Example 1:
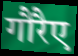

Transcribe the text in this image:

गौरैए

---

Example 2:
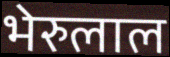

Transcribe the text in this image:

भेरुलाल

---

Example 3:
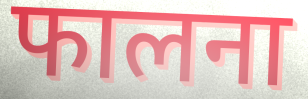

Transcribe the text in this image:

फालना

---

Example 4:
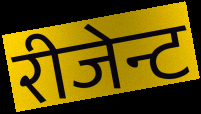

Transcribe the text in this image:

रीजेन्ट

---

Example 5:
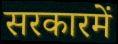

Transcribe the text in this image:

सरकारमें